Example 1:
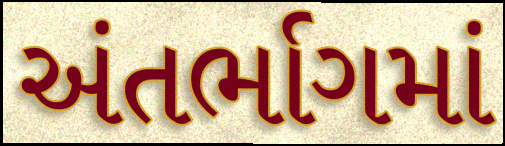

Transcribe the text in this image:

અંતર્ભાગમાં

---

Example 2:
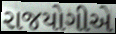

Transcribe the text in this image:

રાજયોગીએ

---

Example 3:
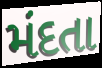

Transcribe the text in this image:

મંદતા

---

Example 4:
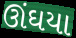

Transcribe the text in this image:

ઊંઘયા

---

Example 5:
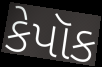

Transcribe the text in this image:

કેપૉક